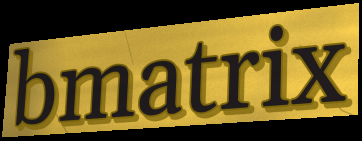
bmatrix